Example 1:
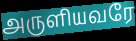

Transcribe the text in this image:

அருளியவரே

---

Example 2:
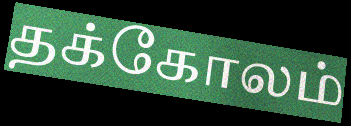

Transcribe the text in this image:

தக்கோலம்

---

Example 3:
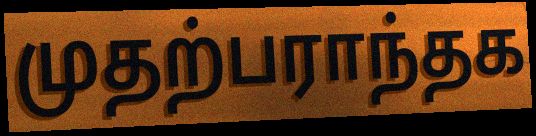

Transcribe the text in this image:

முதற்பராந்தக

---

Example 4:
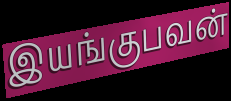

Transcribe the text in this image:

இயங்குபவன்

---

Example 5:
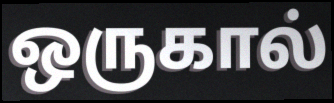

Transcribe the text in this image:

ஒருகால்